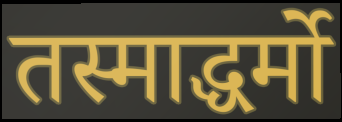
तस्माद्धर्मो